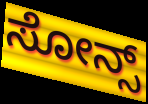
ಸೋನ್ಸ್